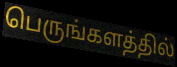
பெருங்களத்தில்